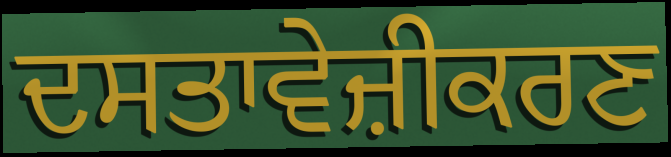
ਦਸਤਾਵੇਜ਼ੀਕਰਣ